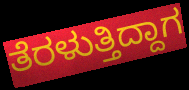
ತೆರಳುತ್ತಿದ್ದಾಗ